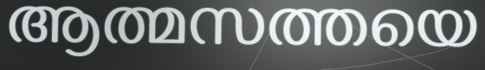
ആത്മസത്തയെ